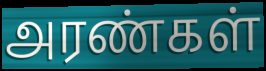
அரண்கள்